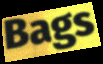
Bags